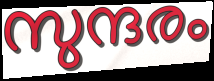
സുന്ദരം